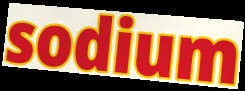
sodium